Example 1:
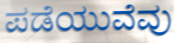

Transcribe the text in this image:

ಪಡೆಯುವೆವು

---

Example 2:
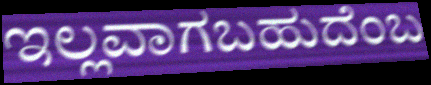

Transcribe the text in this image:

ಇಲ್ಲವಾಗಬಹುದೆಂಬ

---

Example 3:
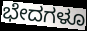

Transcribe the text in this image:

ಭೇದಗಳೂ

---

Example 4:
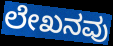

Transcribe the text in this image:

ಲೇಖನವು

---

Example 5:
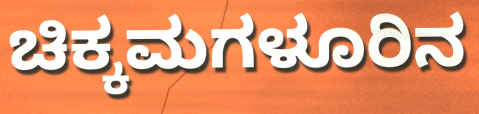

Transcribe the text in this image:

ಚಿಕ್ಕಮಗಳೂರಿನ